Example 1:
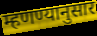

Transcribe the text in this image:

म्हणण्यानुसार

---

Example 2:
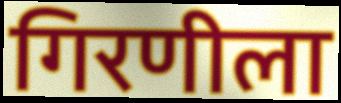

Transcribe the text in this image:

गिरणीला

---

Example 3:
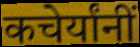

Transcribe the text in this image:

कचेर्यांनीं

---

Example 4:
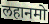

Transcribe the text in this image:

लहानमो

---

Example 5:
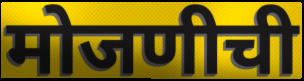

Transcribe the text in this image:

मोजणीची